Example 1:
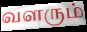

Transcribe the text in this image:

வளரும்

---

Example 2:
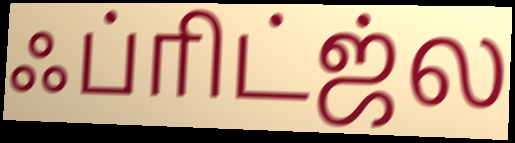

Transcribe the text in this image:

ஃப்ரிட்ஜ்ல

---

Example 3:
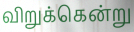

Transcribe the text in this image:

விறுக்கென்று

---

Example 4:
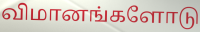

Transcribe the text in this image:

விமானங்களோடு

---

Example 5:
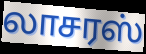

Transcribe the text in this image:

லாசரஸ்